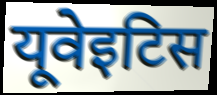
यूवेइटिस